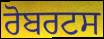
ਰੋਬਰਟਸ